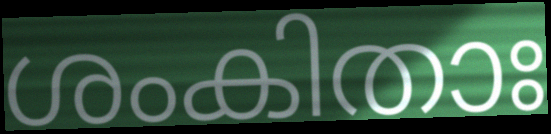
ശംകിതാഃ